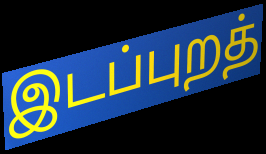
இடப்புறத்